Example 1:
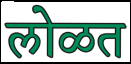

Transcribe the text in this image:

लोळत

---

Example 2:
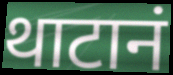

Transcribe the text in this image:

थाटानं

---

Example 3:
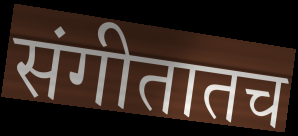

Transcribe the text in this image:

संगीतातच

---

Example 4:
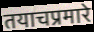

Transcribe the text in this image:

तयाचप्रमारे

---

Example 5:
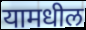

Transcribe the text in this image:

यामधील